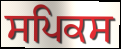
ਸਪਿਕਸ